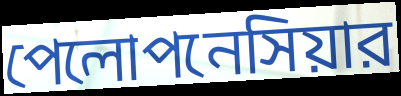
পেলোপনেসিয়ার